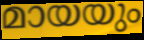
മായയും